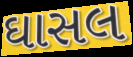
ઘાસલ